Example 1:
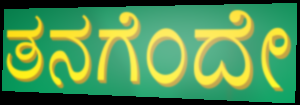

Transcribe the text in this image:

ತನಗೆಂದೇ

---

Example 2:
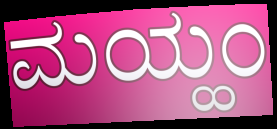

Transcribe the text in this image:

ಮಯ್ಹಂ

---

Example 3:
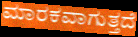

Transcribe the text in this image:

ಮಾರಕವಾಗುತ್ತದೆ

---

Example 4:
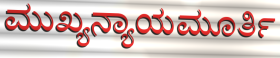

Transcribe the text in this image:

ಮುಖ್ಯನ್ಯಾಯಮೂರ್ತಿ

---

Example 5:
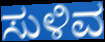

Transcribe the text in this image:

ಸುಳಿವ